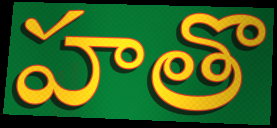
హతొ